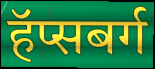
हॅप्सबर्ग